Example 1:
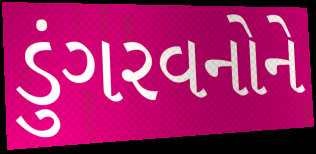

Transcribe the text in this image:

ડુંગરવનોને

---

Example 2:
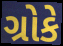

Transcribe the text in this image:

ગ્રોકે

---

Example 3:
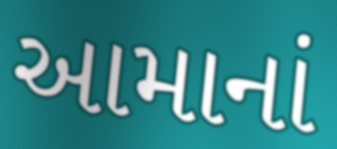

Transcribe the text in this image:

આમાનાં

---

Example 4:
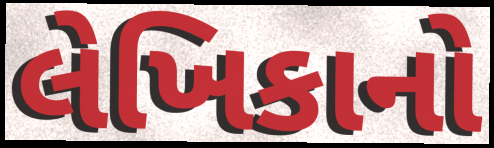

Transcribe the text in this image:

લેખિકાનો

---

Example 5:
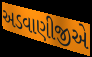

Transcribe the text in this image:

અડવાણીજીએ